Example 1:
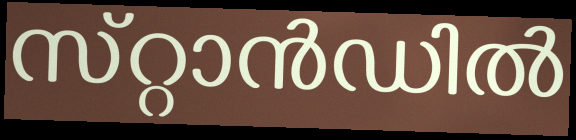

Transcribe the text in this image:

സ്‌റ്റാൻഡിൽ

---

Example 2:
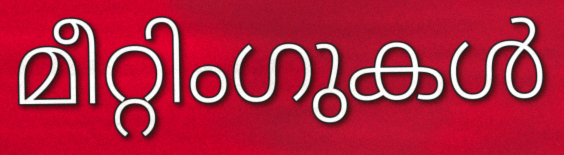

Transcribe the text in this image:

മീറ്റിംഗുകൾ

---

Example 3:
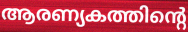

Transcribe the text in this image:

ആരണ്യകത്തിന്റെ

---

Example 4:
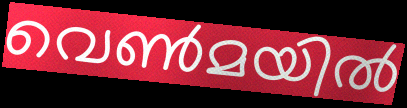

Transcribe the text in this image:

വെൺമയിൽ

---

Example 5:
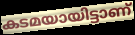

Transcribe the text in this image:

കടമയായിട്ടാണ്